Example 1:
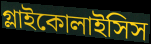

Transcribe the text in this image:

গ্লাইকোলাইসিস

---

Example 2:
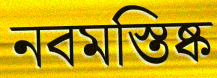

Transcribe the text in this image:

নবমস্তিষ্ক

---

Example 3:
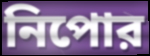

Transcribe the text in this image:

নিপোর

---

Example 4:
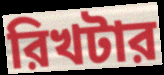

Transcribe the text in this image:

রিখটার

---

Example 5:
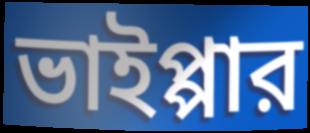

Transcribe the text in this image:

ভাইপ্পার